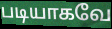
படியாகவே